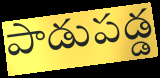
పాడుపడ్డ